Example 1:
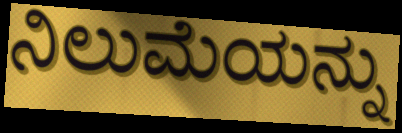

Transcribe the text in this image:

ನಿಲುಮೆಯನ್ನು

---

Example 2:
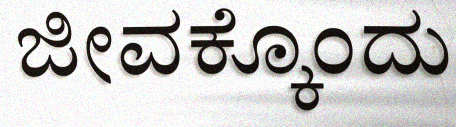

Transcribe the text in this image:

ಜೀವಕ್ಕೊಂದು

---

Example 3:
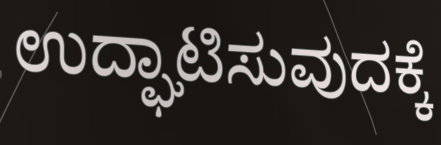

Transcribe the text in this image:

ಉದ್ಘಾಟಿಸುವುದಕ್ಕೆ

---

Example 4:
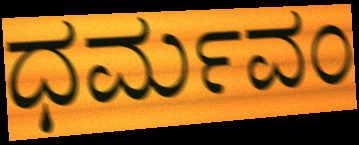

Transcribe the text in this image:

ಧರ್ಮವಂ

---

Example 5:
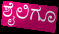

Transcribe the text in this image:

ಶೈಲಿಗೂ